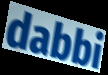
dabbi